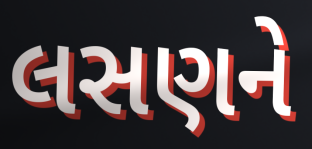
લસણને